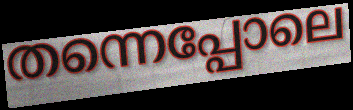
തന്നെപ്പോലെ